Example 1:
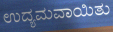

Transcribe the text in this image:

ಉದ್ಯಮವಾಯಿತು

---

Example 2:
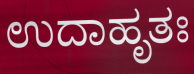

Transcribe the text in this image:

ಉದಾಹೃತಃ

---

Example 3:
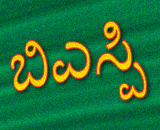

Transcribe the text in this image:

ಬಿಎಸ್ಪಿ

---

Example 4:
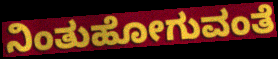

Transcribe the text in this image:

ನಿಂತುಹೋಗುವಂತೆ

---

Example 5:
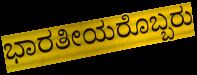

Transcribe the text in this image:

ಭಾರತೀಯರೊಬ್ಬರು